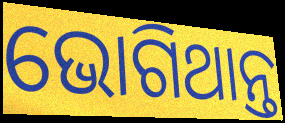
ଭୋଗିଥାନ୍ତ